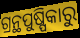
ଗ୍ରନ୍ଥପୁଷ୍ପିକାରୁ